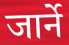
जार्ने